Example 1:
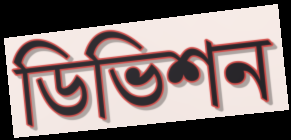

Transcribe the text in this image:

ডিভিশন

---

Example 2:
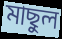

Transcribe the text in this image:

মাছুল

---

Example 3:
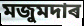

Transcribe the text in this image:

মজুমদাৰ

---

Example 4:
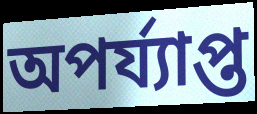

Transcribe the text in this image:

অপৰ্য্যাপ্ত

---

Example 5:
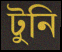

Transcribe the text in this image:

টুনি